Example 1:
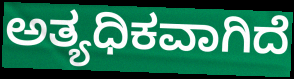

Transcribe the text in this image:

ಅತ್ಯಧಿಕವಾಗಿದೆ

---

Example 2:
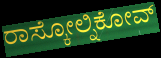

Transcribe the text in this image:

ರಾಸ್ಕೋಲ್ನಿಕೋವ್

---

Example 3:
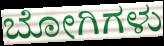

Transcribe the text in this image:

ಬೋಗಿಗಳು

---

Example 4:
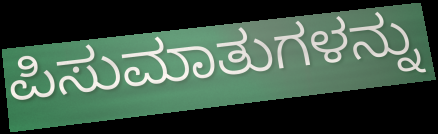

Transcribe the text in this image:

ಪಿಸುಮಾತುಗಳನ್ನು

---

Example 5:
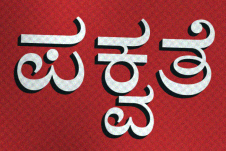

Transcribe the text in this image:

ಪಕ್ವತೆ